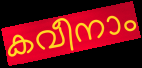
കവീനാം